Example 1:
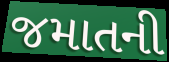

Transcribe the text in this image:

જમાતની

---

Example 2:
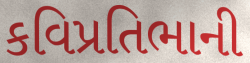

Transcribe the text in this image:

કવિપ્રતિભાની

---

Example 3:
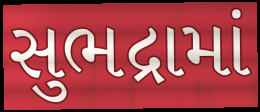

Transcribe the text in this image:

સુભદ્રામાં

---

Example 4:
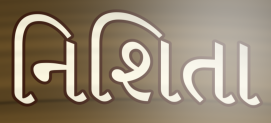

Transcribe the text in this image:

નિશિતા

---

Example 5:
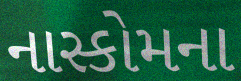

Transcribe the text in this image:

નાસ્કોમના